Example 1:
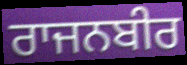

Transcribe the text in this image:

ਰਾਜਨਬੀਰ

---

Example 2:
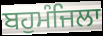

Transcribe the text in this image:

ਬਹੁਮੰਜਿਲਾ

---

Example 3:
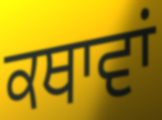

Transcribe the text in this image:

ਕਥਾਵਾਂ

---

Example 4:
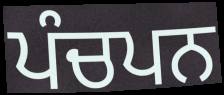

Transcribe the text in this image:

ਪੰਚਪਨ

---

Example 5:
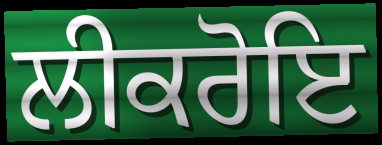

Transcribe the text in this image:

ਲੀਕਰੋਇ